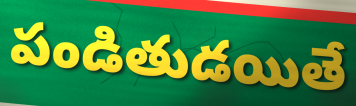
పండితుడయితే